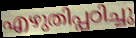
എഴുതിപ്പഠിച്ചു